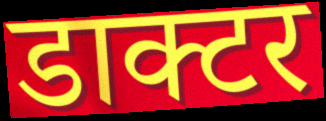
डाक्टर